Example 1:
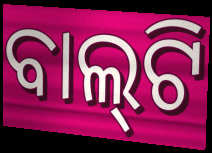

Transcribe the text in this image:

ବାଲ୍‍ଟି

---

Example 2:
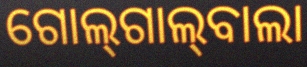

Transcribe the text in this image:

ଗୋଲ୍‍ଗାଲ୍‍ବାଲା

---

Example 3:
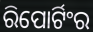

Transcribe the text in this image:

ରିପୋର୍ଟିଂର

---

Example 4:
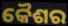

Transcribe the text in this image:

କୈଶର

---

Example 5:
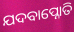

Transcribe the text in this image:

ଯଦବାପ୍ନୋତି